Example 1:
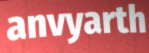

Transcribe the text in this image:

anvyarth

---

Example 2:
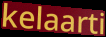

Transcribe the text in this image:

kelaarti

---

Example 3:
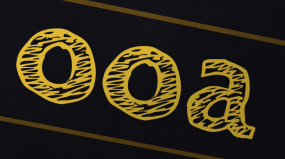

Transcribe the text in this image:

ooa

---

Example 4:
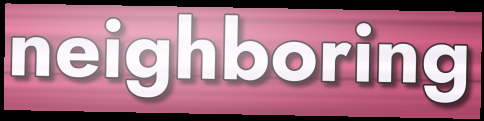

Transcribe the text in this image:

neighboring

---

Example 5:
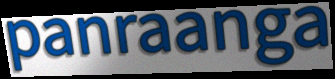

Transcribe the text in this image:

panraanga